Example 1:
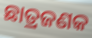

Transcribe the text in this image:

ଛାତ୍ରଜଣକ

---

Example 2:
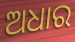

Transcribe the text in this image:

ଅଧାର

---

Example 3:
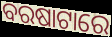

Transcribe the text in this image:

ବରଷାଟାରେ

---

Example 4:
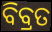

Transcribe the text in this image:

ବିବ୍ରତ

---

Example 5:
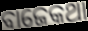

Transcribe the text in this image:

ବାଜେକଥା